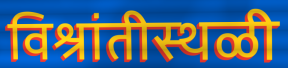
विश्रांतीस्थळी